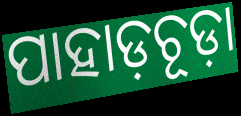
ପାହାଡ଼ଚୂଡ଼ା